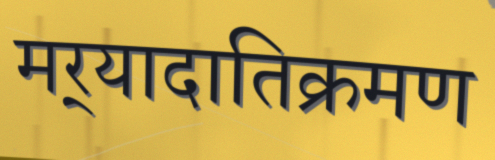
मर्यादातिक्रमण